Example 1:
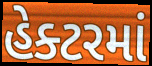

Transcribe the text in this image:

હેક્ટરમાં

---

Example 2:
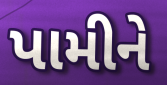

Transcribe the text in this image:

પામીને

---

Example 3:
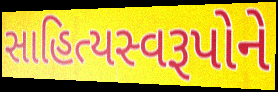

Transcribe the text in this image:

સાહિત્યસ્વરૂપોને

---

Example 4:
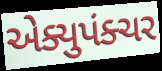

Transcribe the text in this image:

એક્યુપંક્ચર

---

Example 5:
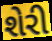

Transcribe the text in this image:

શેરી